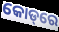
କୋଡ୍‌ରେ